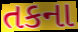
તકના